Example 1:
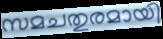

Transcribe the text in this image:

സമചതുരമായി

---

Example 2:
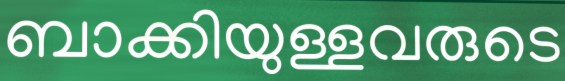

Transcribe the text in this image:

ബാക്കിയുള്ളവരുടെ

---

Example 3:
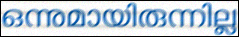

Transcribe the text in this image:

ഒന്നുമായിരുന്നില്ല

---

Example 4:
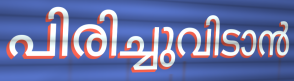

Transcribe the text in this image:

പിരിച്ചുവിടാൻ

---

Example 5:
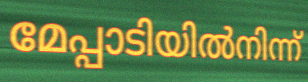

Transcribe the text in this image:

മേപ്പാടിയിൽനിന്ന്